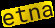
etna